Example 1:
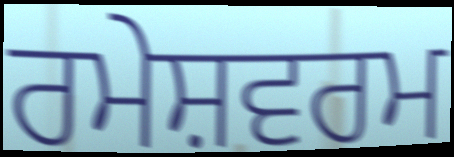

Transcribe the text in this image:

ਰਮੇਸ਼ਵਰਮ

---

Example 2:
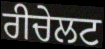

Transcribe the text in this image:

ਰੀਚੇਲਟ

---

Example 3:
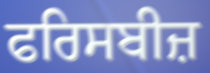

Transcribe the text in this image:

ਫਰਿਸਬੀਜ਼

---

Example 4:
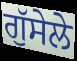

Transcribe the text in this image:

ਗੁੱਸੇਲੇ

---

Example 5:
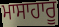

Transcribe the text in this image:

ਮਾਸਾਹਾਰੂ